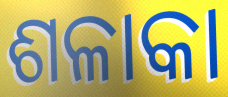
ଶଳାକା